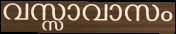
വസ്സാവാസം